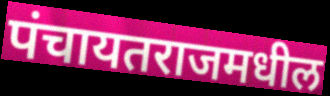
पंचायतराजमधील